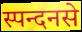
स्पन्दनसे